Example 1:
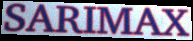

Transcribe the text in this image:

SARIMAX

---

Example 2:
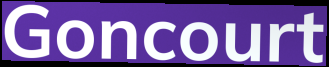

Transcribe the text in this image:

Goncourt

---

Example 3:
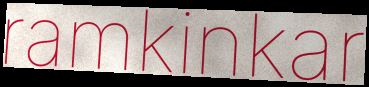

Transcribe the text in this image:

ramkinkar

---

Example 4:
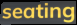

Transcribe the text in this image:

seating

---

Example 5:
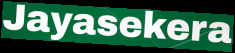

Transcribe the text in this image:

Jayasekera